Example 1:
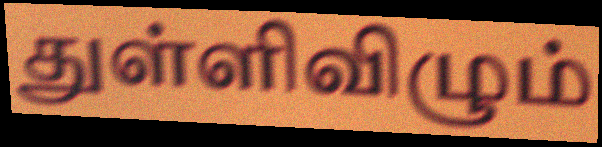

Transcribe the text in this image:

துள்ளிவிழும்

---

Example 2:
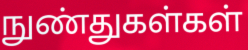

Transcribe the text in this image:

நுண்துகள்கள்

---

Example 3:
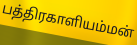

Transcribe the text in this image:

பத்திரகாளியம்மன்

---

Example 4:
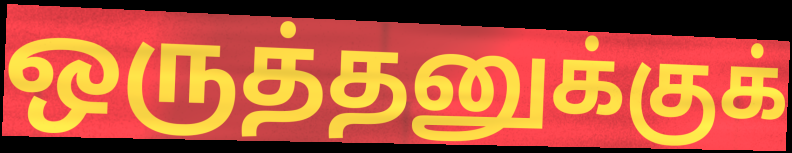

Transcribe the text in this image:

ஒருத்தனுக்குக்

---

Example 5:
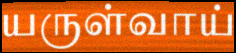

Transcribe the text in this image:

யருள்வாய்